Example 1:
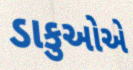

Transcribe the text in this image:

ડાકુઓએ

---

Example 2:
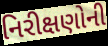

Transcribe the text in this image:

નિરીક્ષણોની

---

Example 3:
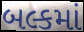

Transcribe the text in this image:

બલ્કમાં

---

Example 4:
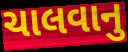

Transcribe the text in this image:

ચાલવાનુ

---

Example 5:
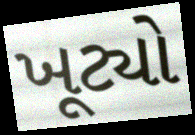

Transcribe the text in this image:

ખૂટ્યો